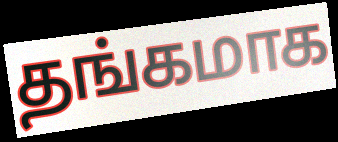
தங்கமாக